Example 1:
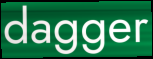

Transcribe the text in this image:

dagger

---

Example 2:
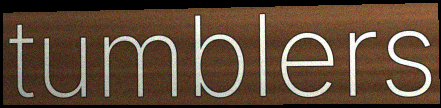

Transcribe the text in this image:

tumblers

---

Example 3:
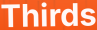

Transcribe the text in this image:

Thirds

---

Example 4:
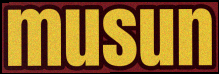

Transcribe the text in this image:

musun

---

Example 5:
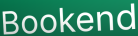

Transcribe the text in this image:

Bookend